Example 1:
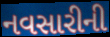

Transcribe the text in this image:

નવસારીની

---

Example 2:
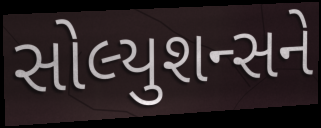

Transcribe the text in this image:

સોલ્યુશન્સને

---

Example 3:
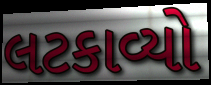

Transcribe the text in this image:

લટકાવ્યો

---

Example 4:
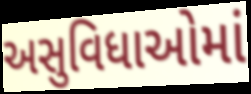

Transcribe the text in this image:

અસુવિધાઓમાં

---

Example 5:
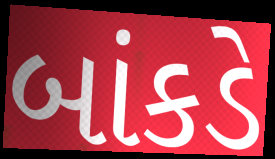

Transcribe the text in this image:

બાંકડે